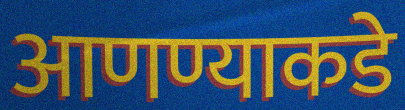
आणण्याकडे